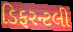
ડિફરન્ટલી